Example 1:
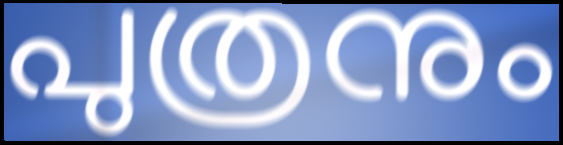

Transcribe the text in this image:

പുത്രനും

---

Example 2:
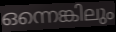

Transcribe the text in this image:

ഒന്നെങ്കിലും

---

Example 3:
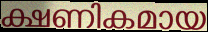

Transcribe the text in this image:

ക്ഷണികമായ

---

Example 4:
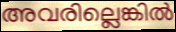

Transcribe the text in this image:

അവരില്ലെങ്കിൽ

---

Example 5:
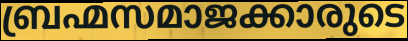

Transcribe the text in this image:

ബ്രഹ്മസമാജക്കാരുടെ